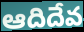
ఆదిదేవ